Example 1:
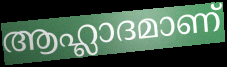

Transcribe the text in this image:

ആഹ്ലാദമാണ്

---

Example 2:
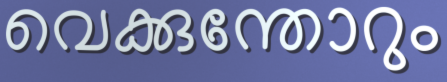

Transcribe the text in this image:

വെക്കുന്തോറും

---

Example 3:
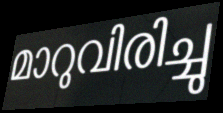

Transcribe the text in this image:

മാറുവിരിച്ചു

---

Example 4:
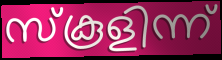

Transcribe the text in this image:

സ്കൂളിന്ന്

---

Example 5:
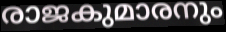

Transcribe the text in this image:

രാജകുമാരനും